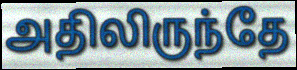
அதிலிருந்தே